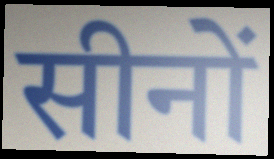
सीनों